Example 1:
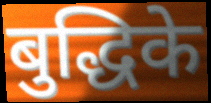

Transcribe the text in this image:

बुद्धिके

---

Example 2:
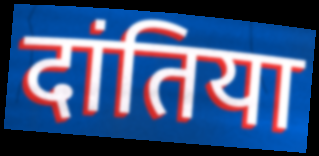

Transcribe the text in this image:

दांतिया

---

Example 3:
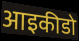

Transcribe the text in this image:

आइकीडो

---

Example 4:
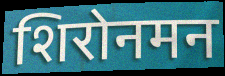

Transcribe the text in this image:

शिरोनमन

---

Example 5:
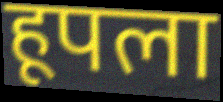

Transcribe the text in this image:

हूपला